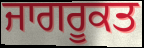
ਜਾਗਰੂਕਤ